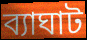
ব্যাঘাট